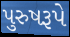
પુરુષરૂપે